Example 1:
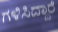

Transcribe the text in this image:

ಗಳಿಸಿದ್ದಾರೆ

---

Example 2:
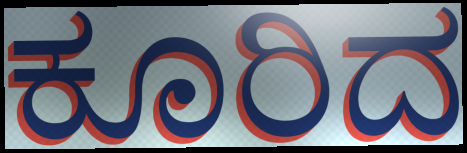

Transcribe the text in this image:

ಕೂರಿದ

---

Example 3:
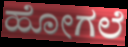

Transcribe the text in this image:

ಹೋಗಲೆ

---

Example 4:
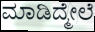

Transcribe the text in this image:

ಮಾಡಿದ್ಮೇಲೆ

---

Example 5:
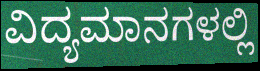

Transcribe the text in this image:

ವಿದ್ಯಮಾನಗಳಲ್ಲಿ